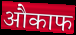
औकाफ